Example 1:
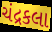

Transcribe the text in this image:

ચંદ્રકલા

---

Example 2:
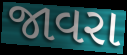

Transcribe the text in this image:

જાવરા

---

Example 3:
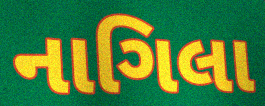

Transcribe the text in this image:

નાગિલા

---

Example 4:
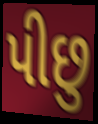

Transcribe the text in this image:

પીછુ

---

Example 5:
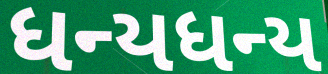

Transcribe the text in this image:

ધન્યધન્ય